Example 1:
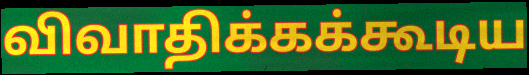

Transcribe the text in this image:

விவாதிக்கக்கூடிய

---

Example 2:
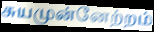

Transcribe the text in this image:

சுயமுன்னேற்றம்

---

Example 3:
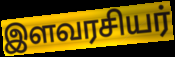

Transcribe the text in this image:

இளவரசியர்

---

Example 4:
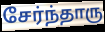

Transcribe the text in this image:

சேர்ந்தாரு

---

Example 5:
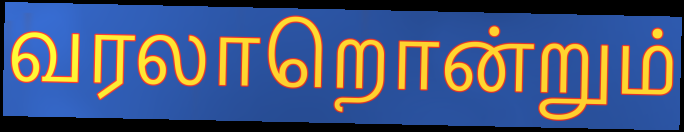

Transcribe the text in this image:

வரலாறொன்றும்